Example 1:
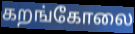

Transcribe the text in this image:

கறங்கோலை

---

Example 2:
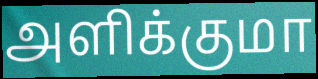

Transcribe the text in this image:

அளிக்குமா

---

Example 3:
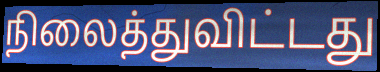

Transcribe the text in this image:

நிலைத்துவிட்டது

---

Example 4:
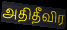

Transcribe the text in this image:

அதிதீவிர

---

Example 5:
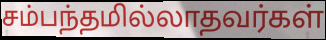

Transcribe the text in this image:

சம்பந்தமில்லாதவர்கள்